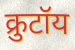
क्रुटॉय